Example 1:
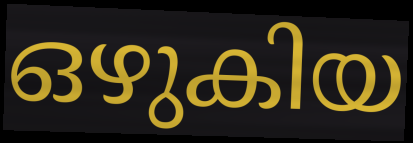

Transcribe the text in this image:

ഒഴുകിയ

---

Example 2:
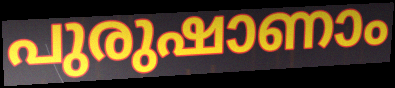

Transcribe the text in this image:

പുരുഷാണാം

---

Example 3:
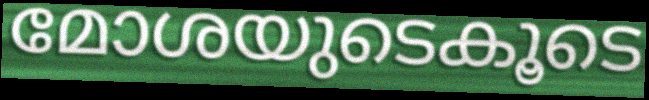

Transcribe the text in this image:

മോശയുടെകൂടെ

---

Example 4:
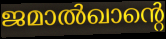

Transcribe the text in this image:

ജമാൽഖാന്റെ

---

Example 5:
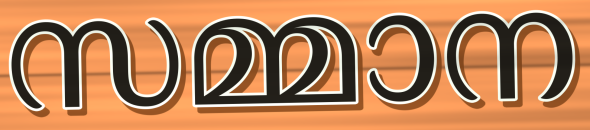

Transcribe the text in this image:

സമ്മാന